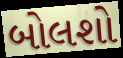
બોલશો